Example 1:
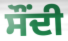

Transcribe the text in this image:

ਸੌਂਦੀ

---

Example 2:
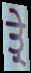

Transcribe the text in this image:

ਤ੍ਰੇ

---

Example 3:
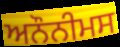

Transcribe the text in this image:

ਅਨੌਨੀਮਸ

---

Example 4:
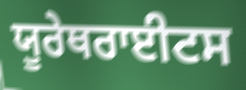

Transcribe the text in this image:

ਯੂਰੇਥਰਾਈਟਸ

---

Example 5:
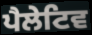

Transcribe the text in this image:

ਪੈਲੇਟਿਵ